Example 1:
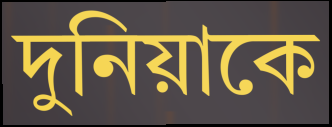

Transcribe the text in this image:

দুনিয়াকে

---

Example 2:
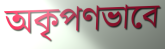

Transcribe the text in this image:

অকৃপণভাবে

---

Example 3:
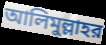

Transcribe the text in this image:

আলিমুল্লাহর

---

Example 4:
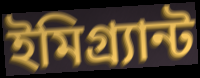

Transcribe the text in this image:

ইমিগ্র্যান্ট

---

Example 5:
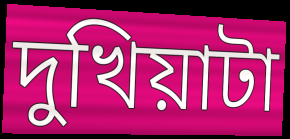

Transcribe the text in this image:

দুখিয়াটা